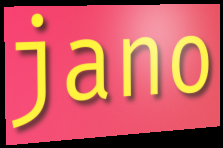
jano